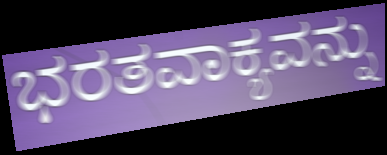
ಭರತವಾಕ್ಯವನ್ನು